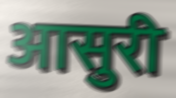
आसुरी